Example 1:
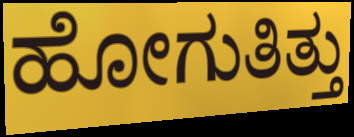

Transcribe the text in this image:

ಹೋಗುತಿತ್ತು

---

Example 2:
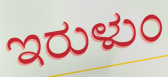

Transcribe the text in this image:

ಇರುಳುಂ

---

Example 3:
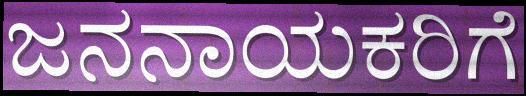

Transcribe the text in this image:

ಜನನಾಯಕರಿಗೆ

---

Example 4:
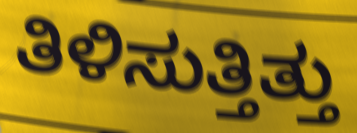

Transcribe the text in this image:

ತಿಳಿಸುತ್ತಿತ್ತು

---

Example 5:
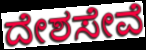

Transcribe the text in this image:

ದೇಶಸೇವೆ